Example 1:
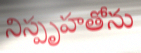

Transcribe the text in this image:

నిస్పృహతోను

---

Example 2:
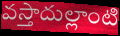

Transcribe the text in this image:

వస్తాదుల్లాంటి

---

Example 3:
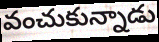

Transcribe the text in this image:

వంచుకున్నాడు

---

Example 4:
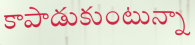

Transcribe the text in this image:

కాపాడుకుంటున్నా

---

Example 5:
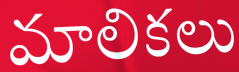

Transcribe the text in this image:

మాలికలు